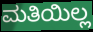
ಮತಿಯಿಲ್ಲ